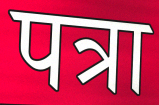
पत्रा